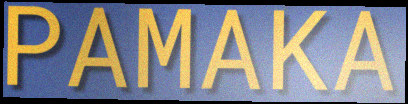
PAMAKA